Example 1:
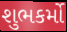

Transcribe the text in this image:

શુભકર્મો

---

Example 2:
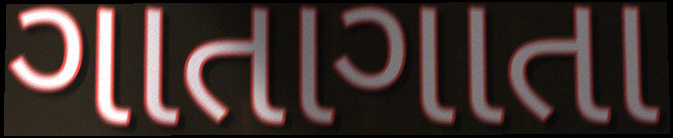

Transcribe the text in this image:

ગાતાગાતા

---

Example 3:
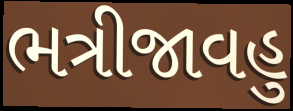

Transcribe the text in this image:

ભત્રીજાવહુ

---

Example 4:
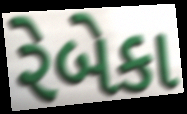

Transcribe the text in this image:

રેબેકા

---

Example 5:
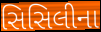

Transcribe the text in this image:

સિસિલીના